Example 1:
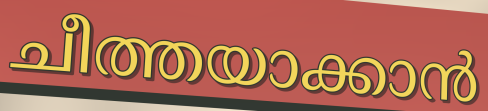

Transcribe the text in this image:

ചീത്തയാക്കാൻ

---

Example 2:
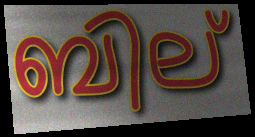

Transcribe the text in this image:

ബില്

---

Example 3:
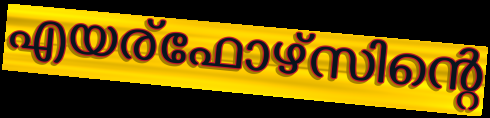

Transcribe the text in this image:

എയര്ഫോഴ്സിന്റെ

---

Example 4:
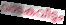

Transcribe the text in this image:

വാടകവീടും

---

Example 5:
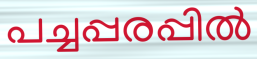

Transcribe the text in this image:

പച്ചപ്പരപ്പിൽ